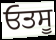
ਓਤਸੂ